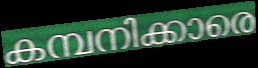
കമ്പനിക്കാരെ